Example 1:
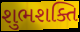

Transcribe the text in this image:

શુભશક્તિ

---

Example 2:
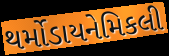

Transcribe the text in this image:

થર્મોડાયનેમિકલી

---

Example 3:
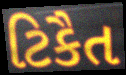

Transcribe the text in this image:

ટિકૈત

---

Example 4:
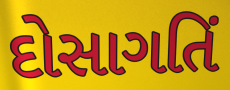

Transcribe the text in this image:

દોસાગતિં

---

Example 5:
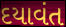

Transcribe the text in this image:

દયાવંત